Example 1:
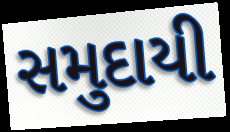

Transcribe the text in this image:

સમુદાયી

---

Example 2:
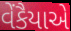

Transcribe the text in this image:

વેંકૈયાએ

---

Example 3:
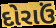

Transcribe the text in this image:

દોરાઉં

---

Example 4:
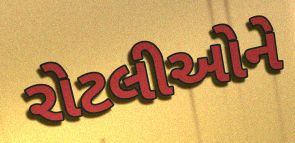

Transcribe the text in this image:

રોટલીઓને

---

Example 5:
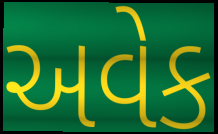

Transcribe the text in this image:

અવેક